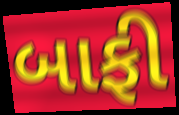
બાફી